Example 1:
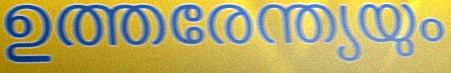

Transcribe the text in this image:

ഉത്തരേന്ത്യയും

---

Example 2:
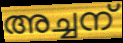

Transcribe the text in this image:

അച്ചന്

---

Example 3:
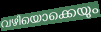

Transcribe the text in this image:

വഴിയൊക്കെയും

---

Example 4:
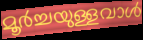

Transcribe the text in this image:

മൂർച്ചയുള്ളവാൾ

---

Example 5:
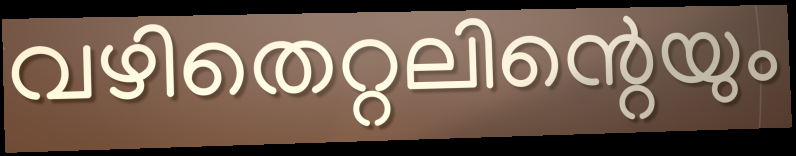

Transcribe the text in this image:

വഴിതെറ്റലിന്റെയും